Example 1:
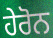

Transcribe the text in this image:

ਹੇਰੋਨ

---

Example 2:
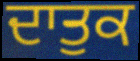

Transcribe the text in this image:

ਦਾਤੁਕ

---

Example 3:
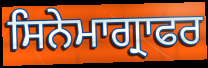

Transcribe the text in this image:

ਸਿਨੇਮਾਗ੍ਰਾਫਰ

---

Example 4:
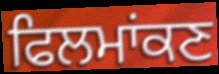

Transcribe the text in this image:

ਫਿਲਮਾਂਕਣ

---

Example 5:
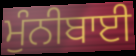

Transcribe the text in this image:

ਮੁੰਨੀਬਾਈ